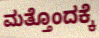
ಮತ್ತೊಂದಕ್ಕೆ